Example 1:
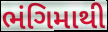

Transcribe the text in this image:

ભંગિમાથી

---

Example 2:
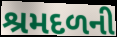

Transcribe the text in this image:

શ્રમદળની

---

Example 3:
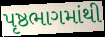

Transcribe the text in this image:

પૃષ્ઠભાગમાંથી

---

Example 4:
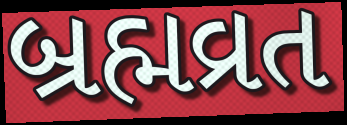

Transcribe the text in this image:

બ્રહ્મવ્રત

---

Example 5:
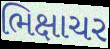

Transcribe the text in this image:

ભિક્ષાચર